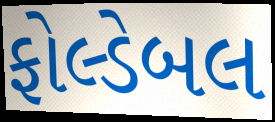
ફોલ્ડેબલ